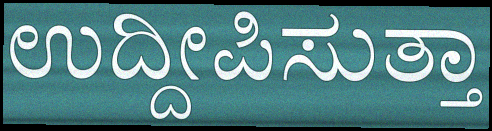
ಉದ್ದೀಪಿಸುತ್ತಾ